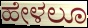
ಹೇಳಲೂ